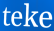
teke